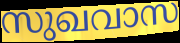
സുഖവാസ